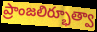
ప్రాంజలిర్భూత్వా